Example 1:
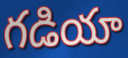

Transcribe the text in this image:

గడియా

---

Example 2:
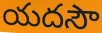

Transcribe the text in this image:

యదసౌ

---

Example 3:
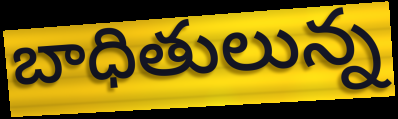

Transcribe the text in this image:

బాధితులున్న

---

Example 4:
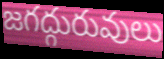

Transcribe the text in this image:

జగద్గురువులు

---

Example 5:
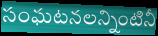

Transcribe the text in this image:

సంఘటనలన్నింటినీ